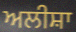
ਅਲੀਸ਼ਾ